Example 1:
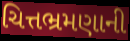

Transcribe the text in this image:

ચિત્તભ્રમણાની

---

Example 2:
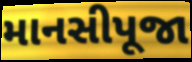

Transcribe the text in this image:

માનસીપૂજા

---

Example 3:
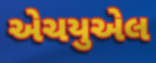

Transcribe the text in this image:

એચયુએલ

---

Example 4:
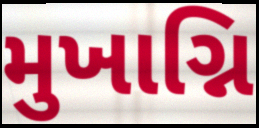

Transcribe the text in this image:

મુખાગ્નિ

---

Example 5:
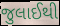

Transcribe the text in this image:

જુલાઈથી